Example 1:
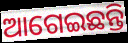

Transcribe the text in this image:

ଆଗେଇଛନ୍ତି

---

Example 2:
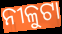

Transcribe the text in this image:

ନୀଳୁଟା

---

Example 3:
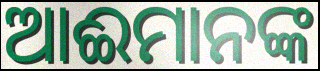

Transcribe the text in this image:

ଆଈମାନଙ୍କ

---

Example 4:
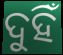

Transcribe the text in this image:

ଦୁହିଁ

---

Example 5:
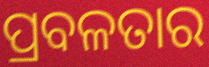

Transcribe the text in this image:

ପ୍ରବଳତାର